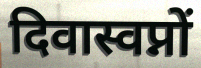
दिवास्वप्नों